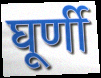
घूर्णी